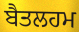
ਬੈਤਲਹਮ